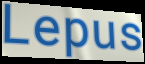
Lepus